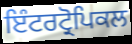
ਇੰਟਰਟ੍ਰੋਪਿਕਲ